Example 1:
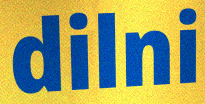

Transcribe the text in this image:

dilni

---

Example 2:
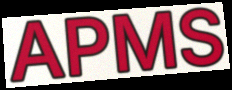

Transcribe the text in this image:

APMS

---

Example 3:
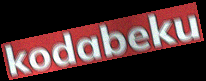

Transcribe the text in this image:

kodabeku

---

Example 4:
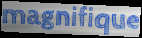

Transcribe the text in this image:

magnifique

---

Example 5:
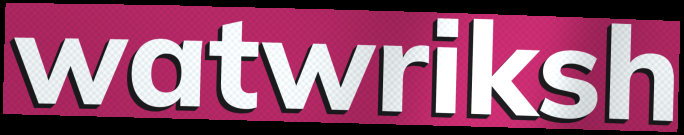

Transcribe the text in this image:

watwriksh